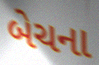
બેચના